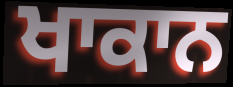
ਖਾਕਾਨ